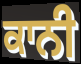
ਕਾਨੀ